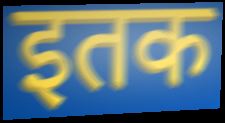
इतक